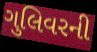
ગુલિવરની